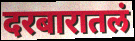
दरबारातलं